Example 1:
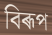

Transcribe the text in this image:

বিৰূপ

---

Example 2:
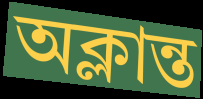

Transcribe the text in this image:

অক্লান্ত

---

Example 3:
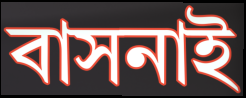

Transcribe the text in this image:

বাসনাই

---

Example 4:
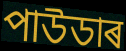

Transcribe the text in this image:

পাউডাৰ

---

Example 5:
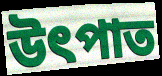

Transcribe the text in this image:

উৎপাত